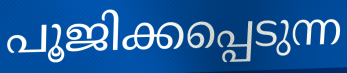
പൂജിക്കപ്പെടുന്ന